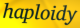
haploidy